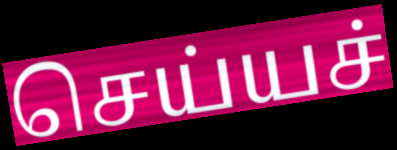
செய்யச்